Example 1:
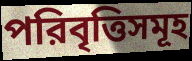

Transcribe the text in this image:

পরিবৃত্তিসমূহ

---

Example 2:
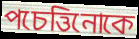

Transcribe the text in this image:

পচেত্তিনোকে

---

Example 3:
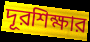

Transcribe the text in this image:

দূরশিক্ষার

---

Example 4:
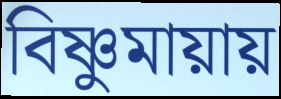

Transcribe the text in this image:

বিষ্ণুমায়ায়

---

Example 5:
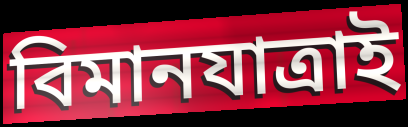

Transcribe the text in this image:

বিমানযাত্রাই